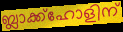
ബ്ലാക്ക്ഹോളിന്